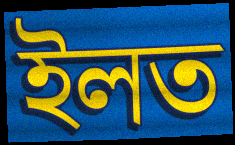
ইলত